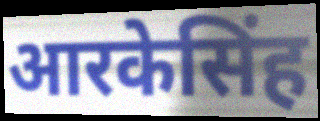
आरकेसिंह